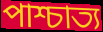
পাশ্চাত্য